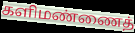
களிமண்ணைத்